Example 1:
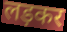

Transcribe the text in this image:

लड़कर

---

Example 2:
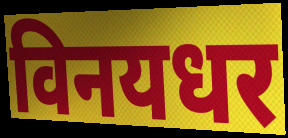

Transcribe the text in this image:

विनयधर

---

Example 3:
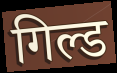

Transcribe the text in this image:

गिल्ड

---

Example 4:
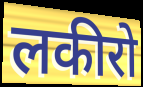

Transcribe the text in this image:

लकीरो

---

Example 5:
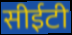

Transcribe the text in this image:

सीईटी